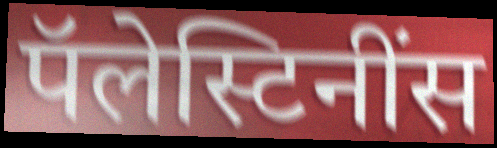
पॅलेस्टिनींस